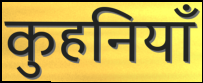
कुहनियाँ